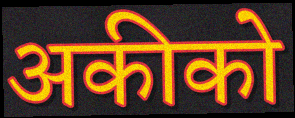
अकीको